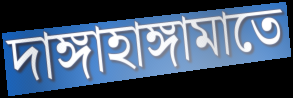
দাঙ্গাহাঙ্গামাতে